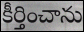
కీర్తించాను